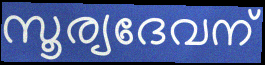
സൂര്യദേവന്